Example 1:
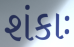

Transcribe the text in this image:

શંકાઃ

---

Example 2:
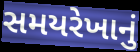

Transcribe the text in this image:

સમયરેખાનું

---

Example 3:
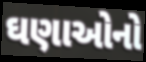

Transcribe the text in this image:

ઘણાઓનો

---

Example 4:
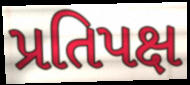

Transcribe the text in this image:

પ્રતિપક્ષ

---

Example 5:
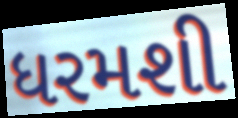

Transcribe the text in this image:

ધરમશી